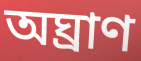
অঘ্রাণ